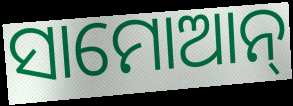
ସାମୋଆନ୍